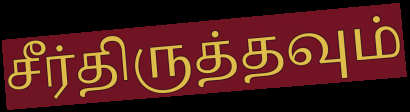
சீர்திருத்தவும்